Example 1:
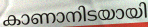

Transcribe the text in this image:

കാണാനിടയായി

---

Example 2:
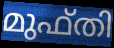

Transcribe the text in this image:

മുഫ്തി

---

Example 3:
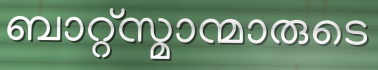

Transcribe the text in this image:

ബാറ്റ്സ്മാന്മാരുടെ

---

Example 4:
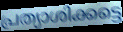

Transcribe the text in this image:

പ്രത്യാശിക്കട്ടെ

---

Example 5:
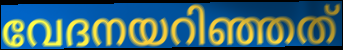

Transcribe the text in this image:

വേദനയറിഞ്ഞത്